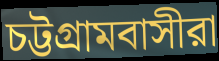
চট্টগ্রামবাসীরা